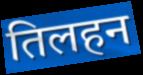
तिलहन